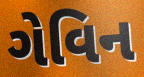
ગેવિન